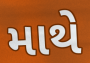
માથે